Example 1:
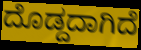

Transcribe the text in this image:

ದೊಡ್ದದಾಗಿದೆ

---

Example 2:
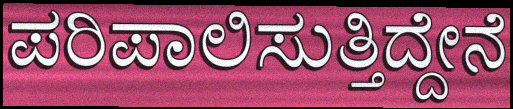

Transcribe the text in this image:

ಪರಿಪಾಲಿಸುತ್ತಿದ್ದೇನೆ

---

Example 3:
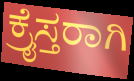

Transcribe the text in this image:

ಕ್ರೈಸ್ತರಾಗಿ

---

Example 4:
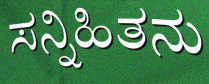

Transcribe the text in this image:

ಸನ್ನಿಹಿತನು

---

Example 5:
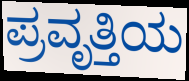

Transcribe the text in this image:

ಪ್ರವೃತ್ತಿಯ